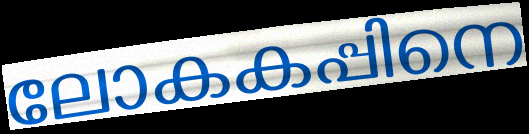
ലോകകപ്പിനെ